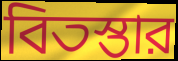
বিতস্তার